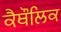
ਕੈਥੌਲਿਕ